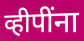
व्हीपींना